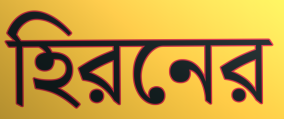
হিরনের